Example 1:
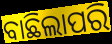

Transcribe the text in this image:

ବାଛିଲାପରି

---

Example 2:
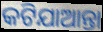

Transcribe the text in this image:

କଟିଯାଆନ୍ତା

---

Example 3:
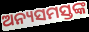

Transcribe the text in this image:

ଅନ୍ୟସମସ୍ତଙ୍କ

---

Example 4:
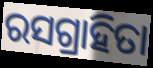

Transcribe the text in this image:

ରସଗ୍ରାହିତା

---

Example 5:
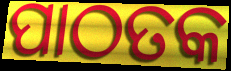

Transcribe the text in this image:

ପାଠତକ